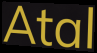
Atal